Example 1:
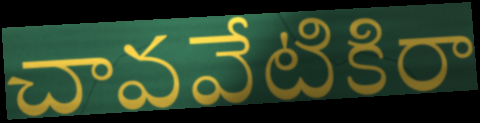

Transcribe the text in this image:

చావవేటికిరా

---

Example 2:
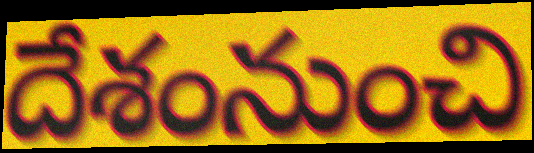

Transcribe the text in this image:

దేశంనుంచి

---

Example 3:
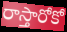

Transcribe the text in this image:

రాస్తారోకో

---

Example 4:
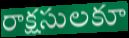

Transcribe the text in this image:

రాక్షసులకూ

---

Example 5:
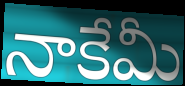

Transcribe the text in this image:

నాకేమీ